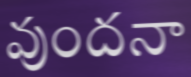
వుందనా